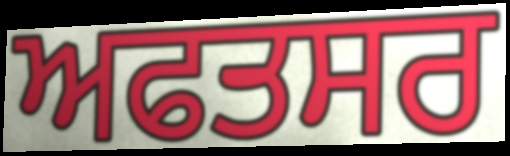
ਅਫਤਸਰ